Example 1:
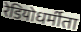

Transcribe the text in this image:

रेडियोधर्मीता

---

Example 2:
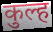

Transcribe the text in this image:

कुल्ह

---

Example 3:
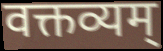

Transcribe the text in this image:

वक्तव्यम्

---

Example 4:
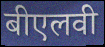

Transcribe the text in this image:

बीएलवी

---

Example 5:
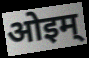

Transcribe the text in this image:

ओइम्